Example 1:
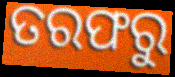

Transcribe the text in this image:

ତରଫରୁ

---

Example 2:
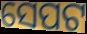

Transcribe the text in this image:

ସେପଟ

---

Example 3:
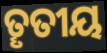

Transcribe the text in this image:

ତୄତୀୟ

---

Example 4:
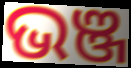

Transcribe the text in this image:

ଭଞ୍ଜ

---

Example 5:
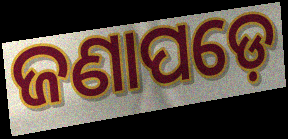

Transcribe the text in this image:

ଜଣାପଡ଼େ